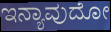
ಇನ್ಯಾವುದೋ